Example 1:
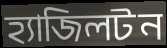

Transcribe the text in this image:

হ্যাজিলটন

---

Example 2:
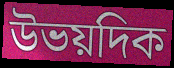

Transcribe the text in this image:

উভয়দিক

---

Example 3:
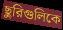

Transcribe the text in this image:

ছুরিগুলিকে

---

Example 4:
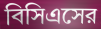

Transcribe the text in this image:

বিসিএসের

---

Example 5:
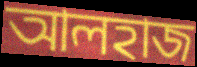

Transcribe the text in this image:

আলহাজ